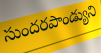
సుందరపాండ్యుని